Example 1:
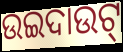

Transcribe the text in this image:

ଉଇଦାଉଟ୍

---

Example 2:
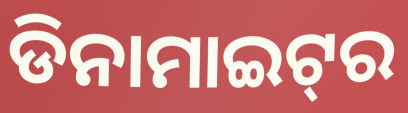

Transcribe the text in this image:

ଡିନାମାଇଟ୍‌ର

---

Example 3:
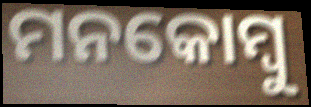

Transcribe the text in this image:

ମନକୋମ୍ବୁ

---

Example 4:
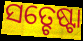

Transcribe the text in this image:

ସତ୍ଚେଷ୍ଟା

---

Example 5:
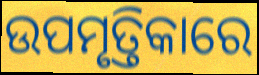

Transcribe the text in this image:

ଉପମୃତ୍ତିକାରେ